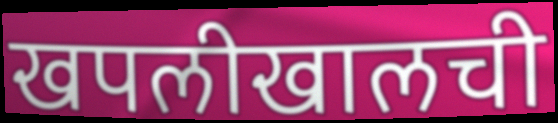
खपलीखालची